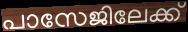
പാസേജിലേക്ക്